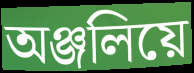
অঞ্জলিয়ে